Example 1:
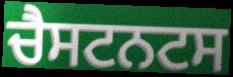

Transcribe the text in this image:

ਚੈਸਟਨਟਸ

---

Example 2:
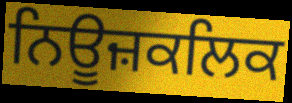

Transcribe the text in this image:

ਨਿਊਜ਼ਕਲਿਕ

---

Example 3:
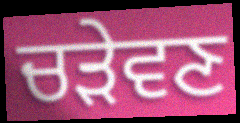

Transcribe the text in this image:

ਚੜੇਵਣ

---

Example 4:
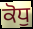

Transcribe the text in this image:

ਕੋਧੁ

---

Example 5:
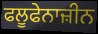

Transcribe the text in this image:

ਫਲੂਫੇਨਾਜ਼ੀਨ